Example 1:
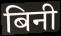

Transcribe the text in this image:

बिनी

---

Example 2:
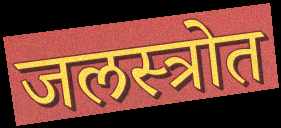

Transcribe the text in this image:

जलस्त्रोत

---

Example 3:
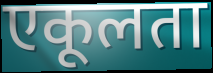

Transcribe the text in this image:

एकूलता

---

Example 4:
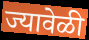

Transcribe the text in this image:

ज्यावेळी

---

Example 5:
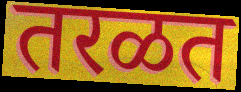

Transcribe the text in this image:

तरळत